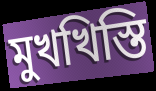
মুখখিস্তি